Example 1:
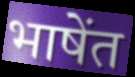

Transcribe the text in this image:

भाषेंत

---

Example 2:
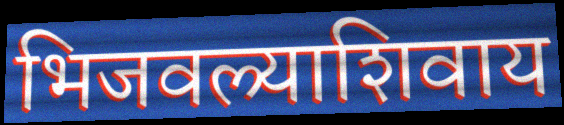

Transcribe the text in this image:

भिजवल्याशिवाय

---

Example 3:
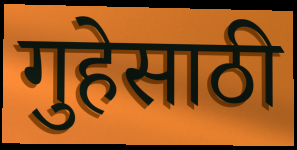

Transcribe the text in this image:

गुहेसाठी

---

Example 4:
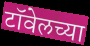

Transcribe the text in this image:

टॉवेलच्या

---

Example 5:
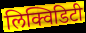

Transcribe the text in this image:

लिक्विडिटी